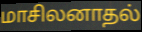
மாசிலனாதல்